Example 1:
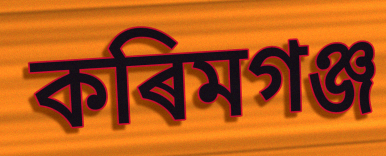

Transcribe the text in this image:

কৰিমগঞ্জ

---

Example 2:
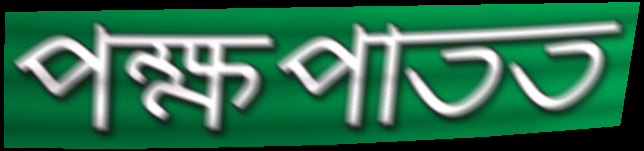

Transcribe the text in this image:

পক্ষপাতত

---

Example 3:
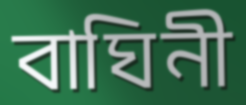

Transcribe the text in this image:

বাঘিনী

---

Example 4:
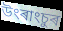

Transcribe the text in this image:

উংৰাংচুৰ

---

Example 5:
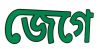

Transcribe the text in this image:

জেগে